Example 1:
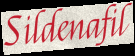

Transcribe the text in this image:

Sildenafil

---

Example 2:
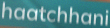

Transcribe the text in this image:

haatchhani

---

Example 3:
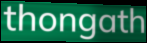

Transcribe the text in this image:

thongath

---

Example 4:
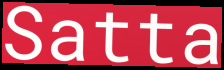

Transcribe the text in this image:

Satta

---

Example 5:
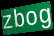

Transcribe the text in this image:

zbog